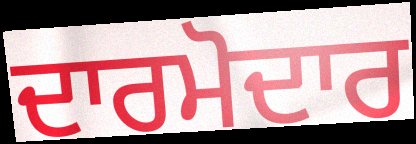
ਦਾਰਮੋਦਾਰ